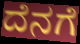
ದೆನಗೆ